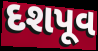
દશપૂવ